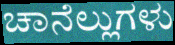
ಚಾನೆಲ್ಲುಗಳು